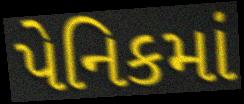
પેનિકમાં